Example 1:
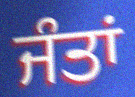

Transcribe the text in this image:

ਜੰਤਾਂ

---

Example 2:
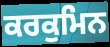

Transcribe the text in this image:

ਕਰਕੁਮਿਨ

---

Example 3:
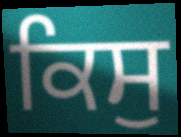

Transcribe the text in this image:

ਕਿਸੁ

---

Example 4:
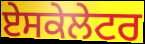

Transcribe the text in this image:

ਏਸਕੇਲੇਟਰ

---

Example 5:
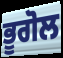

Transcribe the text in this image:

ਭੂਗੋਲ